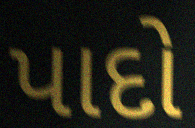
પાદો